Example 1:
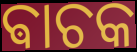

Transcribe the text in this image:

ଵାଚକ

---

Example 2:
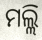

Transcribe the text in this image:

ମଲ୍ଲି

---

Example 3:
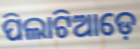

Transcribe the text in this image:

ପିଲାଟିଆଡ଼େ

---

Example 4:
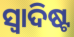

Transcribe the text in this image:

ସ୍ବାଦିଷ୍ଟ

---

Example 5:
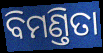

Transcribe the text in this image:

ବିମଣ୍ତିତା